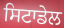
ਸਿਟਾਡੇਲ